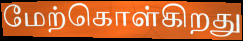
மேற்கொள்கிறது